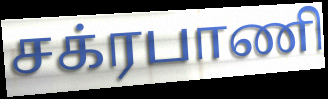
சக்ரபாணி